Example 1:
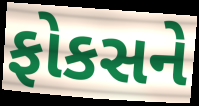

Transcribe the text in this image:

ફોકસને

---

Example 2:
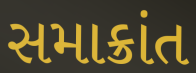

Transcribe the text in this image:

સમાક્રાંત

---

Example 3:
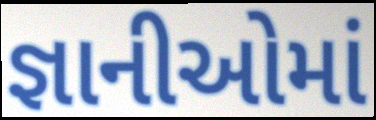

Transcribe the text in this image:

જ્ઞાનીઓમાં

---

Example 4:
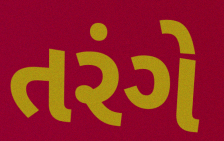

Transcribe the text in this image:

તરંગે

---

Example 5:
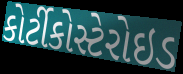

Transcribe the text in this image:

કોર્ટીકોસ્ટેરોઇડ